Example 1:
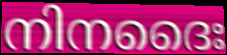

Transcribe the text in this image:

നിനദൈഃ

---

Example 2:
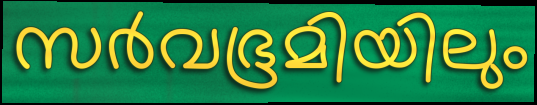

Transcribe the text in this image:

സർവഭൂമിയിലും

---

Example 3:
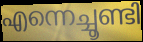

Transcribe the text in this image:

എന്നെച്ചൂണ്ടി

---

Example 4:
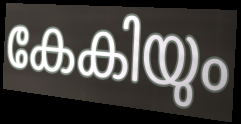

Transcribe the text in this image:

കേകിയും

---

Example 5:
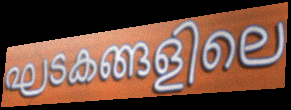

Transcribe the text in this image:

ഘടകങ്ങളിലെ